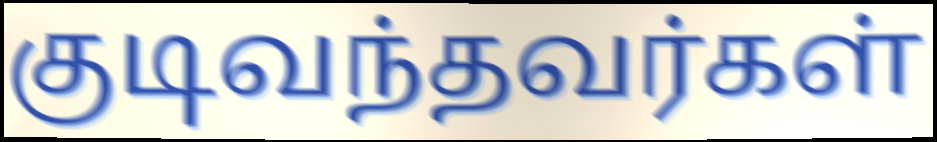
குடிவந்தவர்கள்